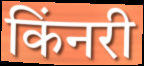
किंनरी